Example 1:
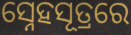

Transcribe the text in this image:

ସ୍ନେହସୂତ୍ରରେ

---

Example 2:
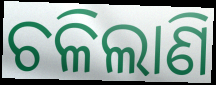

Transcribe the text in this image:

ଚଳିଲାଣି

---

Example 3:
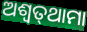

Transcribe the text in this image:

ଅଶ୍ଵତ୍‌ଥାମା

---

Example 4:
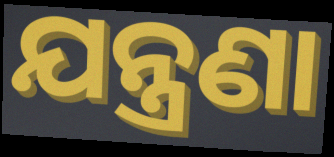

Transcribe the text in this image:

ଯନ୍ତ୍ରଣା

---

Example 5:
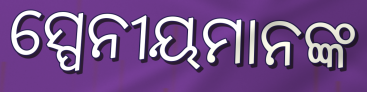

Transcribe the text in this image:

ସ୍ପେନୀୟମାନଙ୍କ